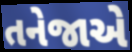
તનેજાએ